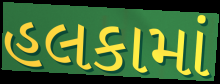
હલકામાં